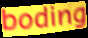
boding